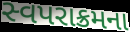
સ્વપરાક્રમના